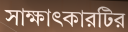
সাক্ষাৎকারটির